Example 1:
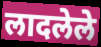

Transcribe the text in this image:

लादलेले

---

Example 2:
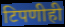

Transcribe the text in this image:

टिपणीही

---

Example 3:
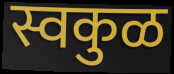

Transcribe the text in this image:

स्वकुळ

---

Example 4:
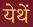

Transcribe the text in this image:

येथें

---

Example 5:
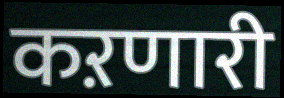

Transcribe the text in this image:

कऱणारी